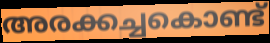
അരക്കച്ചകൊണ്ട്